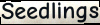
Seedlings